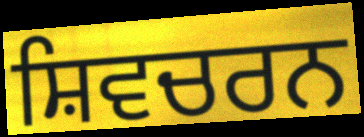
ਸ਼ਿਵਚਰਨ